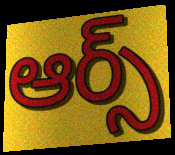
ఆర్స్